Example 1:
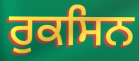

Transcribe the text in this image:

ਰੁਕਸਿਨ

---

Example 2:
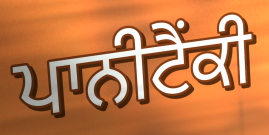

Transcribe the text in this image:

ਪਾਨੀਟੈਂਕੀ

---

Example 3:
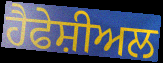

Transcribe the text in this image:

ਹੈਫੇਸ਼ੀਅਲ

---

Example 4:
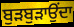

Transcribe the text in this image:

ਬੁੜਬੁੜਾਉਂਦਾ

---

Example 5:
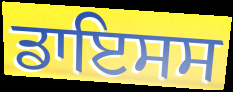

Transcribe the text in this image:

ਡਾਇਸਸ